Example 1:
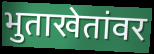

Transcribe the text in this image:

भुताखेतांवर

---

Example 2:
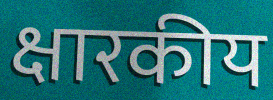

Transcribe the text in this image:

क्षारकीय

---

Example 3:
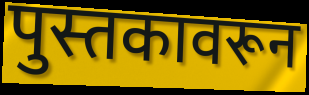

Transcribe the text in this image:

पुस्तकावरून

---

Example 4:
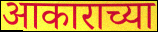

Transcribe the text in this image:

आकाराच्या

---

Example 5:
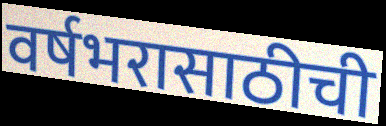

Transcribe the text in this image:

वर्षभरासाठीची